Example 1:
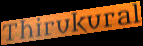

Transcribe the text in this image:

Thirukural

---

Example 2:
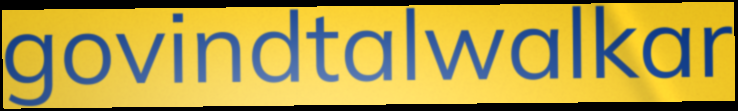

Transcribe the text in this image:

govindtalwalkar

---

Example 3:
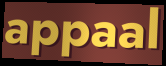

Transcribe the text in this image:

appaal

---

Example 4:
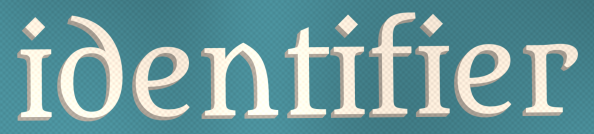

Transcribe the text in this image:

identifier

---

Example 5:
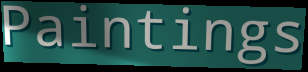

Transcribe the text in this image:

Paintings